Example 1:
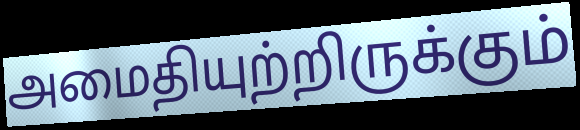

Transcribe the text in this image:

அமைதியுற்றிருக்கும்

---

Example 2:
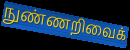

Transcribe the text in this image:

நுண்ணறிவைக்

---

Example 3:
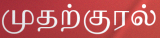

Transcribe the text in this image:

முதற்குரல்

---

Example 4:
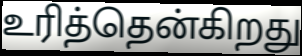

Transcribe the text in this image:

உரித்தென்கிறது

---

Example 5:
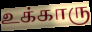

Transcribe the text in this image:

உக்காரு